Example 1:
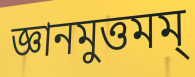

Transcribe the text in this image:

জ্ঞানমুত্তমম্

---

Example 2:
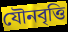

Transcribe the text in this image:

যৌনবৃত্তি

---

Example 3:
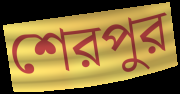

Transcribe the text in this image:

শেরপুর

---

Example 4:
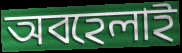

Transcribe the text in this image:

অবহেলাই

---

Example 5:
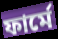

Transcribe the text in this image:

ফার্মে